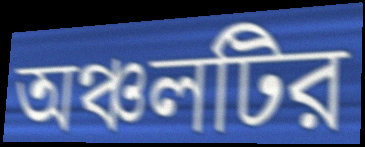
অঞ্চলটির